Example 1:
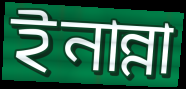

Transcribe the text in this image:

ইনান্না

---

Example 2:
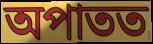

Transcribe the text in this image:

অপাতত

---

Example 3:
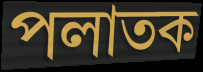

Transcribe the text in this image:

পলাতক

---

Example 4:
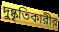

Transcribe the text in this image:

দুষ্কৃতিকারীর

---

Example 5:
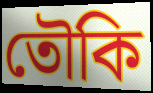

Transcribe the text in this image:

তৌকি